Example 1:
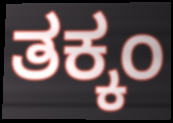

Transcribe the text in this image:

ತಕ್ಕಂ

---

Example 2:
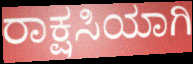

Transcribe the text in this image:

ರಾಕ್ಷಸಿಯಾಗಿ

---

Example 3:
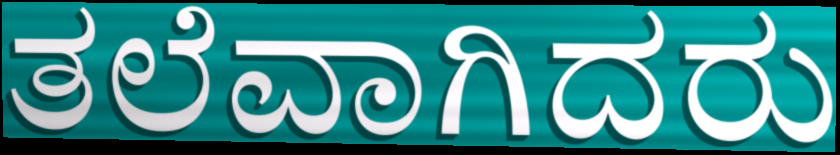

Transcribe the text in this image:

ತಲೆವಾಗಿದರು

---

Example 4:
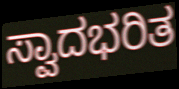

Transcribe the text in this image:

ಸ್ವಾದಭರಿತ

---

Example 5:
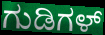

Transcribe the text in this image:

ಗುಡಿಗಳ್